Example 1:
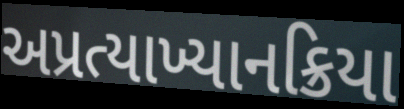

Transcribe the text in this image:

અપ્રત્યાખ્યાનક્રિયા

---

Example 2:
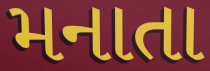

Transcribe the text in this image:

મનાતા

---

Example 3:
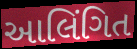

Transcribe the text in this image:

આલિંગિત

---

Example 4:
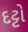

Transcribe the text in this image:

દટ્ટો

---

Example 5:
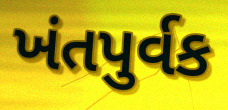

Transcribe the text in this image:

ખંતપુર્વક